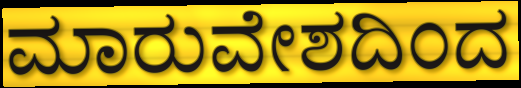
ಮಾರುವೇಶದಿಂದ